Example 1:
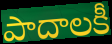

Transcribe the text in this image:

పాదాలకీ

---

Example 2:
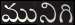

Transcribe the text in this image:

మునిగి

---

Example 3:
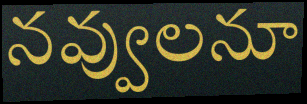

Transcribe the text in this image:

నవ్వులనూ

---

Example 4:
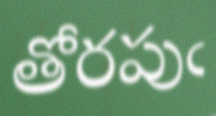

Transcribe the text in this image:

తోరపుఁ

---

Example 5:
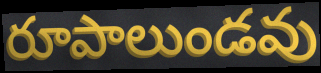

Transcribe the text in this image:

రూపాలుండవు